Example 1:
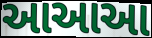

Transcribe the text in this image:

આઆઆ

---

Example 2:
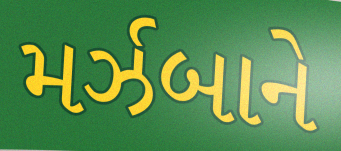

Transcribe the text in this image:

મર્ઝબાને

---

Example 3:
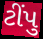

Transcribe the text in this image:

ટીંપુ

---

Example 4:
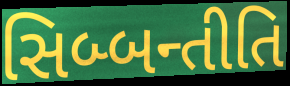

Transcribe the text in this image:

સિબ્બન્તીતિ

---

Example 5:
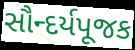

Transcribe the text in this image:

સૌન્દર્યપૂજક